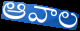
ఆవాల